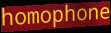
homophone